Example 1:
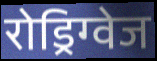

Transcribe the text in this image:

रोड्रिग्वेज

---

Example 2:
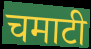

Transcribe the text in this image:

चमाटी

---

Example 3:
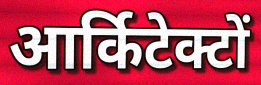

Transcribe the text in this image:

आर्किटेक्टों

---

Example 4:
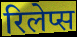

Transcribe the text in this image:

रिलेप्स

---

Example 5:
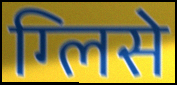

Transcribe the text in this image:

ग्लिसे